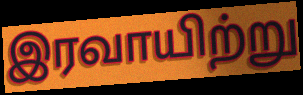
இரவாயிற்று